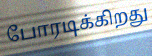
போரடிக்கிறது